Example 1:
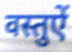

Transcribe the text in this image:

वस्तुऐं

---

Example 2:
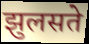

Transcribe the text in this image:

झुलसते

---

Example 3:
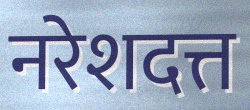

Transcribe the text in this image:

नरेशदत्त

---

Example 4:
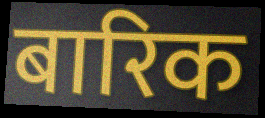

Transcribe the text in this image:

बारिक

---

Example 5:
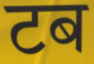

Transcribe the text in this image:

टब